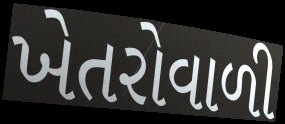
ખેતરોવાળી